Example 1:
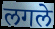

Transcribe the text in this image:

लगले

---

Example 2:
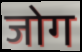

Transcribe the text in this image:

जोग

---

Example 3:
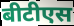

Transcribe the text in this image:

बीटीएस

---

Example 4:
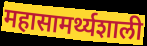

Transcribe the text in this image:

महासामर्थ्यशाली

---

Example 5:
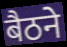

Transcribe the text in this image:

बैठने